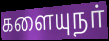
களையுநர்